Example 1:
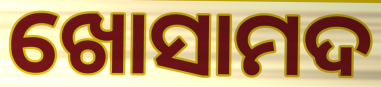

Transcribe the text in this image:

ଖୋସାମଦ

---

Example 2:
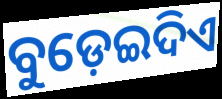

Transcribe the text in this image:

ବୁଡ଼େଇଦିଏ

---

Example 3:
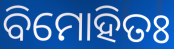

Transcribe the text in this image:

ବିମୋହିତଃ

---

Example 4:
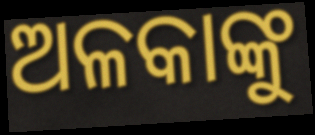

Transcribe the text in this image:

ଅଳକାଙ୍କୁ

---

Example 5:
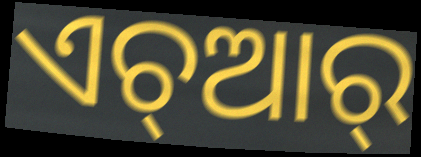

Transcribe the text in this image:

ଏଚ୍ଆର୍